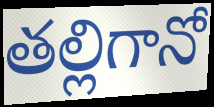
తల్లిగానో